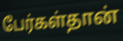
பேர்கள்தான்